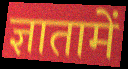
ज्ञातामें